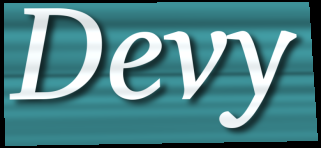
Devy